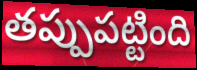
తప్పుపట్టింది